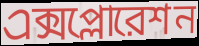
এক্সপ্লোরেশন